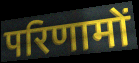
परिणामों